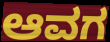
ಆವಗ